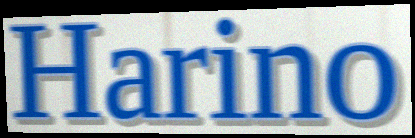
Harino